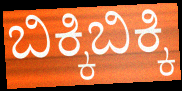
ಬಿಕ್ಕಿಬಿಕ್ಕಿ